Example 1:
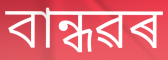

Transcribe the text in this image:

বান্ধৱৰ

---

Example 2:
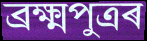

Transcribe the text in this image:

ব্ৰক্ষ্মপুত্ৰৰ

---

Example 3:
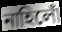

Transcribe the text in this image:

নাহিলোঁ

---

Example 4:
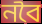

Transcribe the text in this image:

নবৈ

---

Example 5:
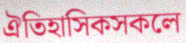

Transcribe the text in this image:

ঐতিহাসিকসকলে